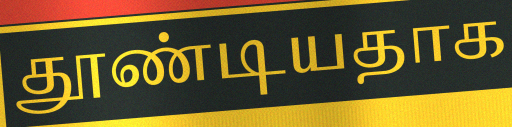
தூண்டியதாக